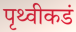
पृथ्वीकडं